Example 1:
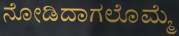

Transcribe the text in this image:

ನೋಡಿದಾಗಲೊಮ್ಮೆ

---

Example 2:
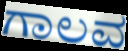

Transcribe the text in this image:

ಗಾಲವ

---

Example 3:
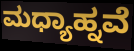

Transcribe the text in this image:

ಮಧ್ಯಾಹ್ನವೆ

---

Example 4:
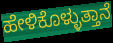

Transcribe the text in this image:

ಹೇಳಿಕೊಳ್ಳುತ್ತಾನೆ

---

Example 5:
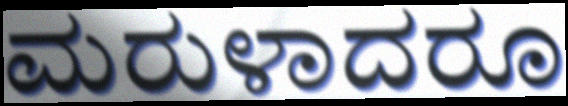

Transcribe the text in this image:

ಮರುಳಾದರೂ